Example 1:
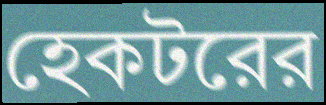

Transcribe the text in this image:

হেকটরের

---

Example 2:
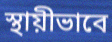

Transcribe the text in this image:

স্থায়ীভাবে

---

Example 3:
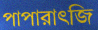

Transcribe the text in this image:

পাপারাৎজি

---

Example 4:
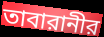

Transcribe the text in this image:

তাবারানীর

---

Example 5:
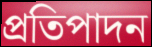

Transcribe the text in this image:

প্রতিপাদন